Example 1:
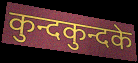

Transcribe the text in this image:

कुन्दकुन्दके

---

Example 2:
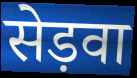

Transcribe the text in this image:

सेड़वा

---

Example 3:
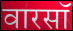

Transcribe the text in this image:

वारसॉ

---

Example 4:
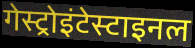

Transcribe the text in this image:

गेस्ट्रोइंटेस्टाइनल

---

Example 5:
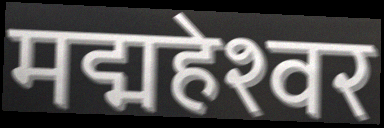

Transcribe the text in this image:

मद्महेश्वर